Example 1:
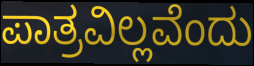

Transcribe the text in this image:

ಪಾತ್ರವಿಲ್ಲವೆಂದು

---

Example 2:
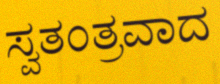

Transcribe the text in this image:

ಸ್ವತಂತ್ರವಾದ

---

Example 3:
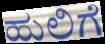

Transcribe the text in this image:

ಹುಲಿಗೆ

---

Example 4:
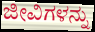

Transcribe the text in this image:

ಜೀವಿಗಳನ್ನು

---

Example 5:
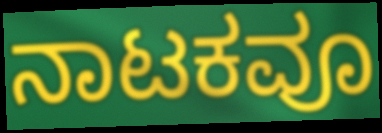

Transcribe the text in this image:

ನಾಟಕವೂ